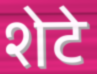
शेटे